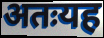
अतःयह